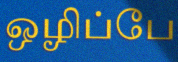
ஒழிப்பே